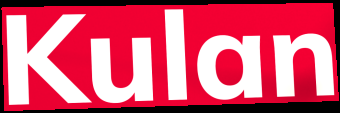
Kulan